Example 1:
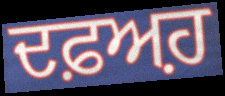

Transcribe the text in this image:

ਦਫ਼ਅ਼ਹ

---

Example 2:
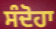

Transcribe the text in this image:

ਸੰਦੋਹਾ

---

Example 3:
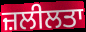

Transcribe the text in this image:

ਜ਼ਲੀਲਤਾ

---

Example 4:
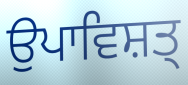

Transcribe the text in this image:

ਉਪਾਵਿਸ਼ਤ੍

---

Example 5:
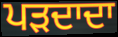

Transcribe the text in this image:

ਪੜਦਾਦਾ